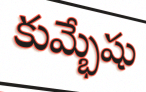
కుమ్భేషు